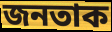
জনতাক